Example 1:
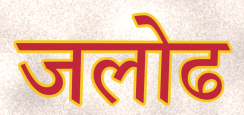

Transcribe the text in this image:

जलोढ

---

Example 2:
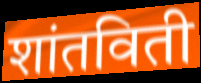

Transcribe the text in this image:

शांतविती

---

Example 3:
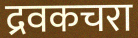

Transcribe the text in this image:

द्रवकचरा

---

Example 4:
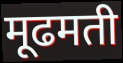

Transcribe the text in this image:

मूढमती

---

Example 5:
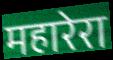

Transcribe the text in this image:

महारेरा